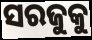
ସରଜୁକୁ